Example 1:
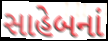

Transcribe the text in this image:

સાહેબનાં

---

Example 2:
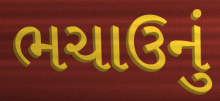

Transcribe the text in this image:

ભચાઉનું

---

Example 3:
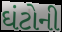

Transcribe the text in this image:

ઘંટોની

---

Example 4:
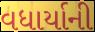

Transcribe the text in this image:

વધાર્યાની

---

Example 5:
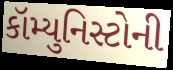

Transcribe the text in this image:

કૉમ્યુનિસ્ટોની